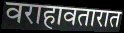
वराहावतारात